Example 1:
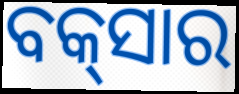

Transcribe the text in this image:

ବକ୍‌ସାର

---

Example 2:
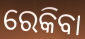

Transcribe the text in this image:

ରେକିବା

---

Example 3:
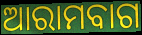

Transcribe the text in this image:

ଆରାମବାଗ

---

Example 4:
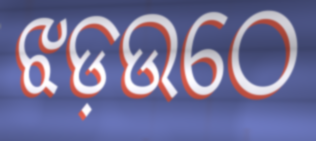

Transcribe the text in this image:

ଝଡ଼ଉଠେ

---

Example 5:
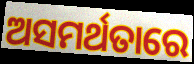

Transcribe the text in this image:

ଅସମର୍ଥତାରେ